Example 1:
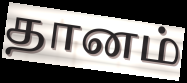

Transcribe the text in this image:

தானம்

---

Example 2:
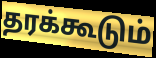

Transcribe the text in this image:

தரக்கூடும்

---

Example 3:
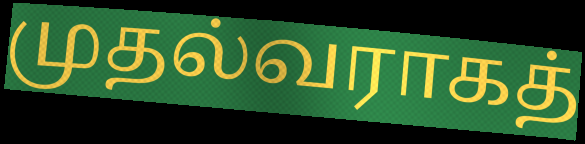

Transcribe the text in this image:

முதல்வராகத்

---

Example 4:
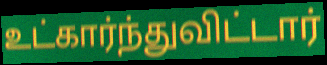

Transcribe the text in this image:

உட்கார்ந்துவிட்டார்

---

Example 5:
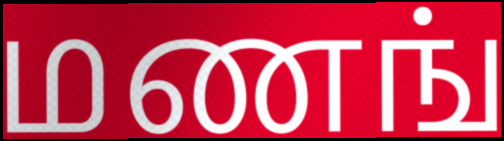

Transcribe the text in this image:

மணங்